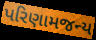
પરિણામજન્ય